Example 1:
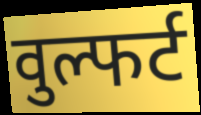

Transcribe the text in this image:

वुल्फर्ट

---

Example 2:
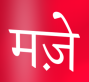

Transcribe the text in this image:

मज़े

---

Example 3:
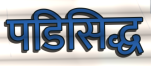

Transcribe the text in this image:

पडिसिद्ध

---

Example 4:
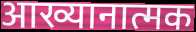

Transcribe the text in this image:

आख्यानात्मक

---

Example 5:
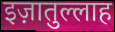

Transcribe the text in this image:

इज़ातुल्लाह